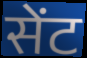
सेंट